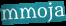
mmoja